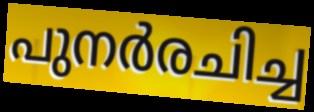
പുനർരചിച്ച